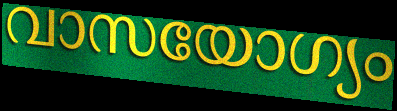
വാസയോഗ്യം